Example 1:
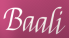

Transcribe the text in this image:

Baali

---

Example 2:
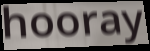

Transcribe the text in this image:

hooray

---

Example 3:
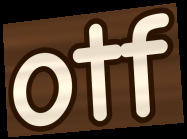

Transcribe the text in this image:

otf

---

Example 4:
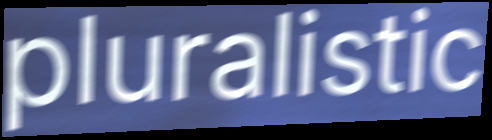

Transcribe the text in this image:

pluralistic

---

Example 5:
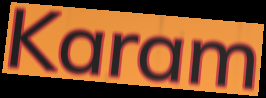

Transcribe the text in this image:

Karam